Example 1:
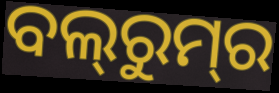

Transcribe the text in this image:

ବଲ୍‍ରୁମ୍‌ର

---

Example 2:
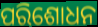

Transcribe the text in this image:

ପରିଶୋଧନ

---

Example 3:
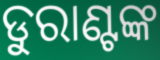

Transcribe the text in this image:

ଡୁରାଣ୍ଟଙ୍କ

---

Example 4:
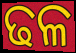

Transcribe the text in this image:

ଢଳ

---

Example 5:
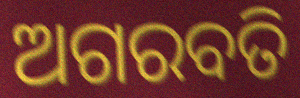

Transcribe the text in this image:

ଅଗରବତି